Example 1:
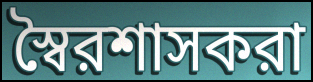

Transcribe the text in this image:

স্বৈরশাসকরা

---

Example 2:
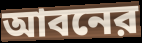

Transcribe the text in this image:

আবনের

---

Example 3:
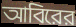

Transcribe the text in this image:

আবিরের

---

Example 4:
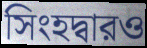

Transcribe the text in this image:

সিংহদ্বারও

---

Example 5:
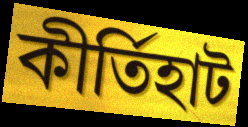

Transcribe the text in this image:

কীর্তিহাট